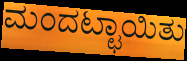
ಮಂದಟ್ಟಾಯಿತು